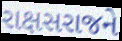
રાક્ષસરાજને